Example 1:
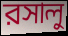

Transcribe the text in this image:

রসালু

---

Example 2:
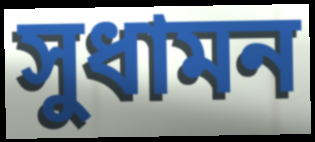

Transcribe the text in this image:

সুধামন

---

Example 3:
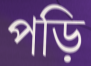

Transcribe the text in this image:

পড়ি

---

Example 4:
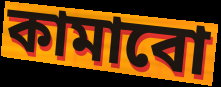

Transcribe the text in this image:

কামাবো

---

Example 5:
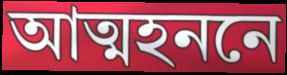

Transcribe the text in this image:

আত্মহননে